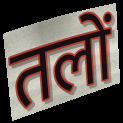
तलों